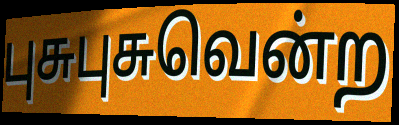
புசுபுசுவென்ற